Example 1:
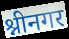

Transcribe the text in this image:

श्नीनगर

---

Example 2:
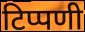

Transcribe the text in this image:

टिप्पणी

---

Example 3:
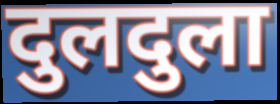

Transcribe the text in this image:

दुलदुला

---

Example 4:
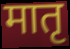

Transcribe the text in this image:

मातृ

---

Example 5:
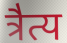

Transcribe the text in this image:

त्रैत्य